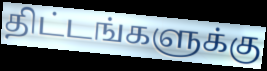
திட்டங்களுக்கு